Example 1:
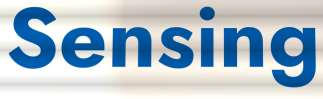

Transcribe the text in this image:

Sensing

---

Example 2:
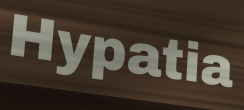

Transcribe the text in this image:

Hypatia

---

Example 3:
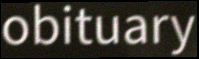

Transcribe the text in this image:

obituary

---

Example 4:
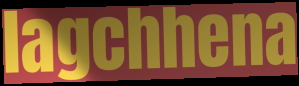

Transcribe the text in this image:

lagchhena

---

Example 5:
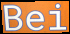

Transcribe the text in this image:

Bei